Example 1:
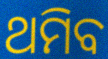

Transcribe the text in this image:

ଥମିବ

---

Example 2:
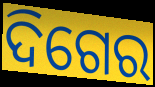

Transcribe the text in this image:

ଦିଗେର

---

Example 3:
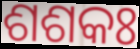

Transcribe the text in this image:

ଶଶକଃ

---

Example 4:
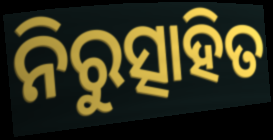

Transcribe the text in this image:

ନିରୁତ୍ସାହିତ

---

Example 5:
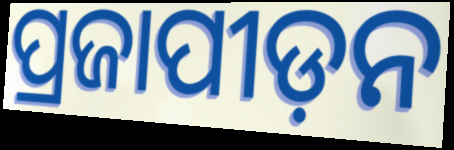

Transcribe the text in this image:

ପ୍ରଜାପୀଡ଼ନ